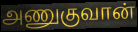
அணுகுவான்